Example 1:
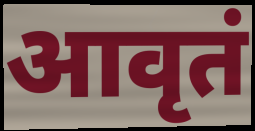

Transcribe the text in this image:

आवृतं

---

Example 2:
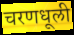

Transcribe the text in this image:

चरणधूली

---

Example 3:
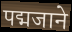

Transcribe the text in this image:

पद्मजाने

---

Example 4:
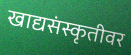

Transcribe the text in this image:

खाद्यसंस्कृतीवर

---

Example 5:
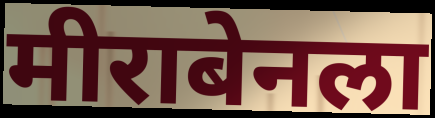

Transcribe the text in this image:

मीराबेनला